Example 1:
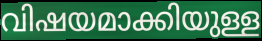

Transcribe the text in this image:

വിഷയമാക്കിയുള്ള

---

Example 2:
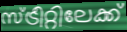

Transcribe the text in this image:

സ്ട്രീറ്റിലേക്ക്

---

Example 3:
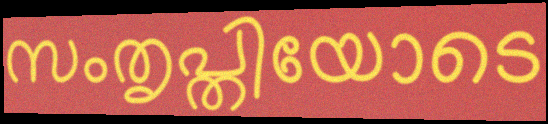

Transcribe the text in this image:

സംതൃപ്തിയോടെ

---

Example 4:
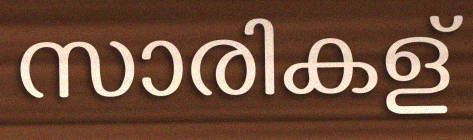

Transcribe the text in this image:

സാരികള്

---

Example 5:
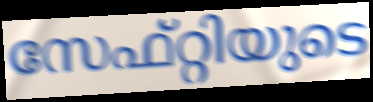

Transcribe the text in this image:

സേഫ്റ്റിയുടെ